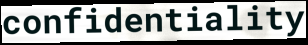
confidentiality